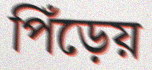
পিঁড়েয়